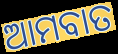
ଆମବାତ